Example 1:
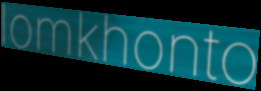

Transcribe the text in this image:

lomkhonto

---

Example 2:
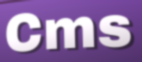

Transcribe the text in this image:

Cms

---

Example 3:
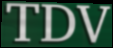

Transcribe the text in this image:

TDV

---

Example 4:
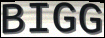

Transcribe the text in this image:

BIGG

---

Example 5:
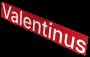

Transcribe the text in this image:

Valentinus